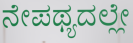
ನೇಪಥ್ಯದಲ್ಲೇ